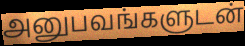
அனுபவங்களுடன்